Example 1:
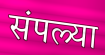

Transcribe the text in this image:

संपल्या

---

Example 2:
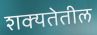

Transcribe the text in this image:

शक्यतेतील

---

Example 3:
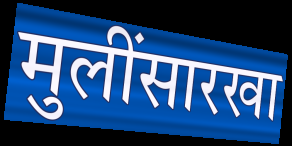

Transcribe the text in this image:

मुलींसारखा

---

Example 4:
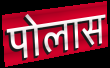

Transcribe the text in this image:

पोलास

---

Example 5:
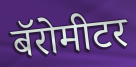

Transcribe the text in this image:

बॅरोमीटर